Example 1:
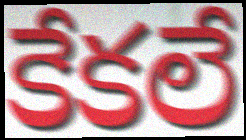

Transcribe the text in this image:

కేకలే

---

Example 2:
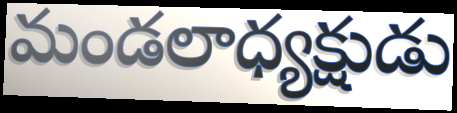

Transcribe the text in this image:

మండలాధ్యక్షుడు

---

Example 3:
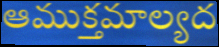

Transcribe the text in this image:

ఆముక్తమాల్యద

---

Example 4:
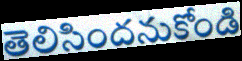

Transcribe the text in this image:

తెలిసిందనుకోండి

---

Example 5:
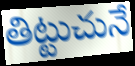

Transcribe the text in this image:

తిట్టుచునే